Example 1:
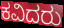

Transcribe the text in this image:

ಕವಿದರು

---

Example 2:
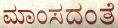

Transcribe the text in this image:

ಮಾಂಸದಂತೆ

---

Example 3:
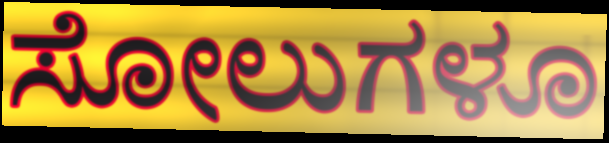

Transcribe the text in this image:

ಸೋಲುಗಳೂ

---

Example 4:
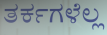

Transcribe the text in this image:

ತರ್ಕಗಳೆಲ್ಲ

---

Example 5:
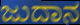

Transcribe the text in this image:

ಜುದಾನ